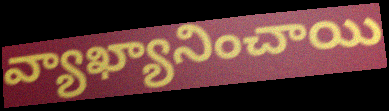
వ్యాఖ్యానించాయి